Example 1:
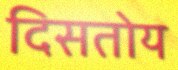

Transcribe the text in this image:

दिसतोय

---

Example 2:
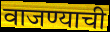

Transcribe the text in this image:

वाजण्याची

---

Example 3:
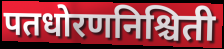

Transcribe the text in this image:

पतधोरणनिश्चिती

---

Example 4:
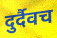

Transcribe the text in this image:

दुर्दैवच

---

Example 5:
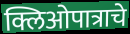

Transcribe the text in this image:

क्लिओपात्राचे